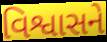
વિશ્વાસને